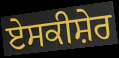
ਏਸਕੀਸ਼ੇਰ